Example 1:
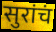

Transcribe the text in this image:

सुरांचं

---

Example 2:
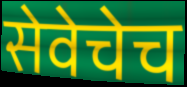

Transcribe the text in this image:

सेवेचेच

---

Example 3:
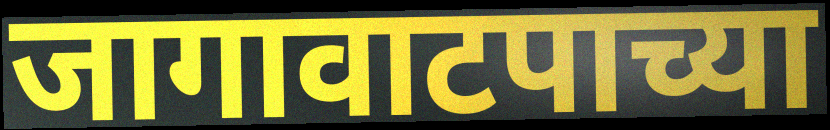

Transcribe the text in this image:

जागावाटपाच्या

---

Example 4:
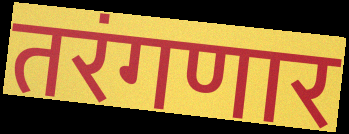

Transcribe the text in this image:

तरंगणार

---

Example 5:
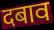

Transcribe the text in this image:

दबाव